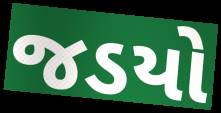
જડયો